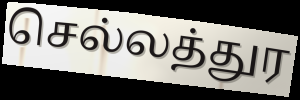
செல்லத்துர